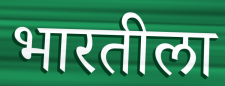
भारतीला